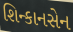
શિન્કાનસેન